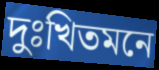
দুঃখিতমনে